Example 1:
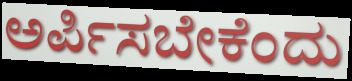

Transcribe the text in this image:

ಅರ್ಪಿಸಬೇಕೆಂದು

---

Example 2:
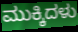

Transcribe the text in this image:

ಮುಕ್ಕಿದಳು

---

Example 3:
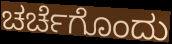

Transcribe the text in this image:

ಚರ್ಚೆಗೊಂದು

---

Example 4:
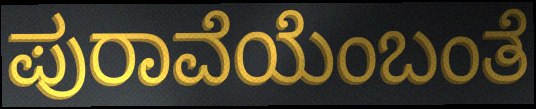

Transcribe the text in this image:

ಪುರಾವೆಯೆಂಬಂತೆ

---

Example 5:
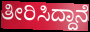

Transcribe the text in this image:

ತೀರಿಸಿದ್ದಾನೆ